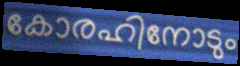
കോരഹിനോടും